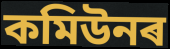
কমিউনৰ